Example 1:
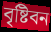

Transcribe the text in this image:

বৃষ্টিবন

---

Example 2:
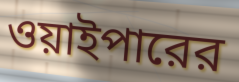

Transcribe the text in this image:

ওয়াইপারের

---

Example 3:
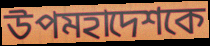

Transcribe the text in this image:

উপমহাদেশকে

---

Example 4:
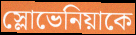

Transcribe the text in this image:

স্লোভেনিয়াকে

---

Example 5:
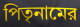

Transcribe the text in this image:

পিতৃনামের